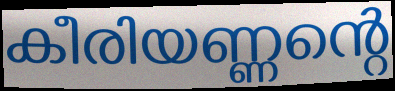
കീരിയണ്ണന്റെ